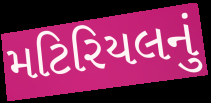
મટિરિયલનું